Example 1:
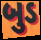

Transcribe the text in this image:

બુડ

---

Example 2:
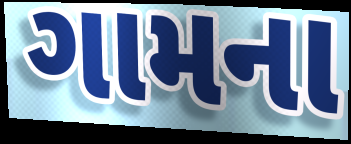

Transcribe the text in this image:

ગામના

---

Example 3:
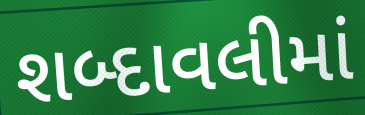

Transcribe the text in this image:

શબ્દાવલીમાં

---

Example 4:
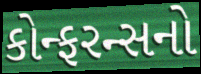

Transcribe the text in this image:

કોન્ફરન્સનો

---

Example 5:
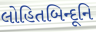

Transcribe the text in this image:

લોહિતબિન્દૂનિ